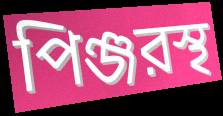
পিঞ্জরস্থ